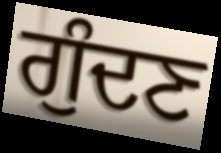
ਗੁੰਦਣ